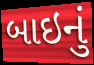
બાઇનું